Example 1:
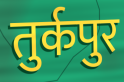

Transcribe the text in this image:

तुर्कपुर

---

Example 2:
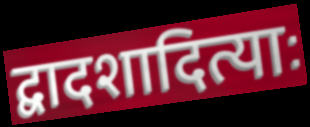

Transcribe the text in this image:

द्वादशादित्याः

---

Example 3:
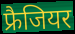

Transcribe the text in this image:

फ्रैजियर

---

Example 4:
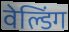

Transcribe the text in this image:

वेल्डिंग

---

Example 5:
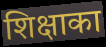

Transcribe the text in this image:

शिक्षाका